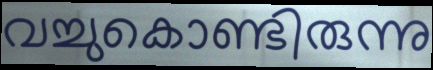
വച്ചുകൊണ്ടിരുന്നു